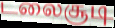
டலைசூடி